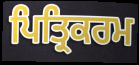
ਪਿਤ੍ਰਿਕਰਮ